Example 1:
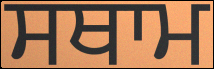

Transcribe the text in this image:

ਸਥਾਮ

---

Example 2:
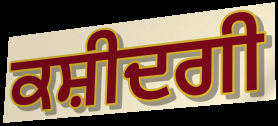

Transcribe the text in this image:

ਕਸ਼ੀਦਗੀ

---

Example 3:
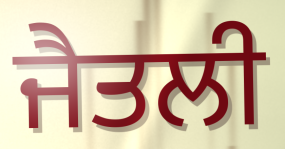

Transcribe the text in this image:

ਜੈਤਲੀ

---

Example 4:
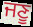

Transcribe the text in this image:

ਜਣੂ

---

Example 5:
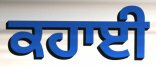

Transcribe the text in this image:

ਕਹਾਈ